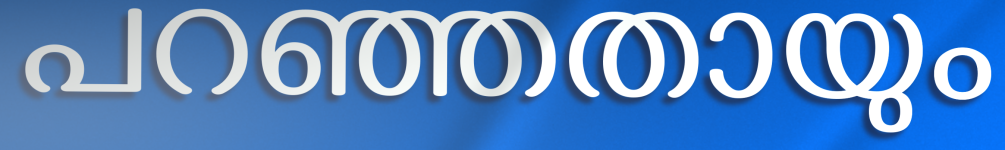
പറഞ്ഞതായും